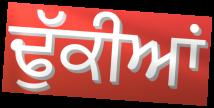
ਢੁੱਕੀਆਂ